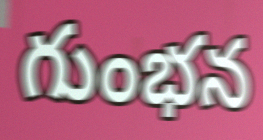
గుంభన